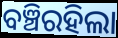
ବଞ୍ଚିରହିଲା